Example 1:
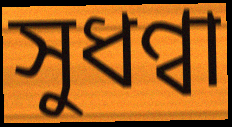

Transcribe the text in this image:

সুধণ্বা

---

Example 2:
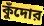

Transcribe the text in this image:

কুঁদোর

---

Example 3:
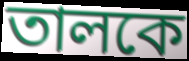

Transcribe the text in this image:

তালকে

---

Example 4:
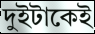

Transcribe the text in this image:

দুইটাকেই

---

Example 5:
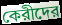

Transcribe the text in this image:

কেরীদের